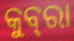
କୁବ୍‍ରା